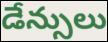
డేన్సులు